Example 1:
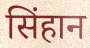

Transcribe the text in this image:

सिंहान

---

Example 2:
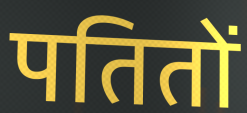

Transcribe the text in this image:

पतितों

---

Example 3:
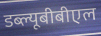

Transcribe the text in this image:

डब्ल्यूबीबीएल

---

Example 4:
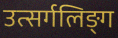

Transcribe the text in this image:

उत्सर्गलिङ्ग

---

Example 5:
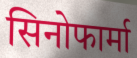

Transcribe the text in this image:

सिनोफार्मा